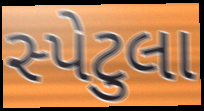
સ્પેટુલા